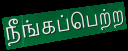
நீங்கப்பெற்ற